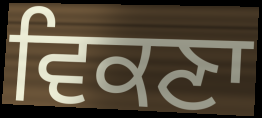
ਵਿਕਣਾ